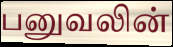
பனுவலின்